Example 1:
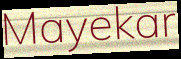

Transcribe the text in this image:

Mayekar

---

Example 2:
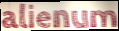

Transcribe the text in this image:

alienum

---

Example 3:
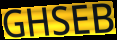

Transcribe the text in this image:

GHSEB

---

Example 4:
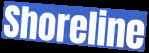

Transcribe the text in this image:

Shoreline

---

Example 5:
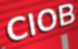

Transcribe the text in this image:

CIOB